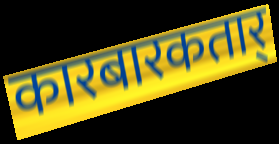
कारबारकतार्